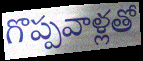
గొప్పవాళ్లతో